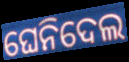
ଘେନିଦେଲ